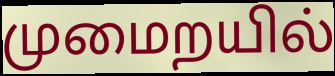
முமைறயில்